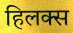
हिलक्स